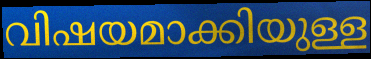
വിഷയമാക്കിയുള്ള